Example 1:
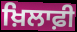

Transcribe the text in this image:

ਖ਼ਿਲਾਫ਼ੀ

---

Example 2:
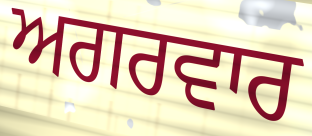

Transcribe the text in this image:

ਅਗਰਵਾਰ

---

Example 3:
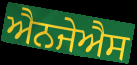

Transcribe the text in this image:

ਐਨਜੇਐਸ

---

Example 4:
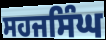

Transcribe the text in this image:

ਸਹਜਸਿੰਘ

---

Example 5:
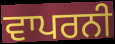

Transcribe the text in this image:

ਵਾਪਰਨੀ